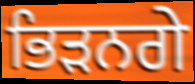
ਭਿੜਨਗੇ